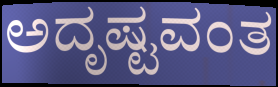
ಅದೃಷ್ಟವಂತ